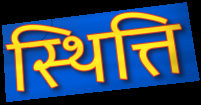
स्थित्ति